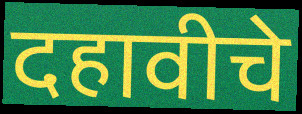
दहावीचे